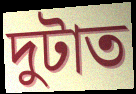
দুটাত